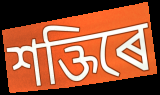
শক্তিৰে